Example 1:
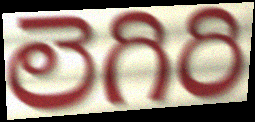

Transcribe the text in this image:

లెగిరి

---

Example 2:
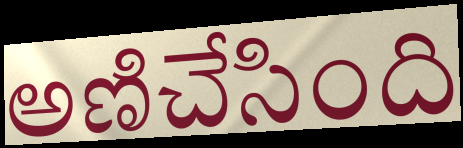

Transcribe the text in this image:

అణిచేసింది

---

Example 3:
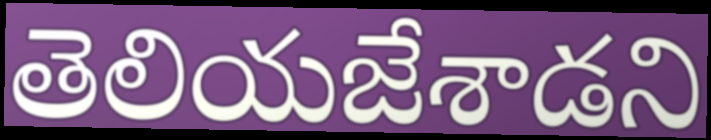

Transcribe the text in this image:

తెలియజేశాడని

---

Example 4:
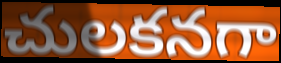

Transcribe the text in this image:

చులకనగా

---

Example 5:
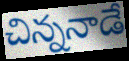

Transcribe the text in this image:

చిన్ననాడే